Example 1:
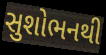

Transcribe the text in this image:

સુશોભનથી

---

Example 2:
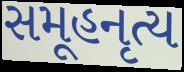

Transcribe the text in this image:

સમૂહનૃત્ય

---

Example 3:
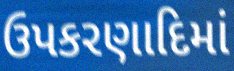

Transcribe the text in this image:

ઉપકરણાદિમાં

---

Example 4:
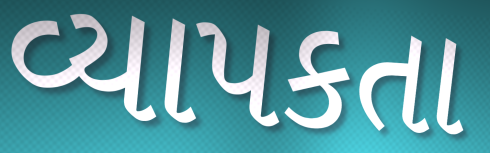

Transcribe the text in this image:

વ્યાપકતા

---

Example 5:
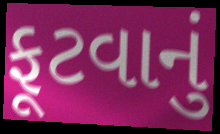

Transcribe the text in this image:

ફૂટવાનું